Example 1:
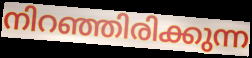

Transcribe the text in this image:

നിറഞ്ഞിരിക്കുന്ന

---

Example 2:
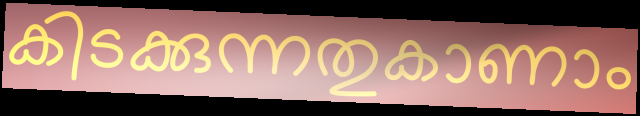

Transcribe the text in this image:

കിടക്കുന്നതുകാണാം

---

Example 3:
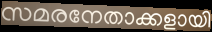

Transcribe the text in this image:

സമരനേതാക്കളായി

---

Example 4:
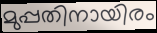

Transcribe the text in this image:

മുപ്പതിനായിരം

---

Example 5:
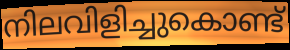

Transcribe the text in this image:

നിലവിളിച്ചുകൊണ്ട്